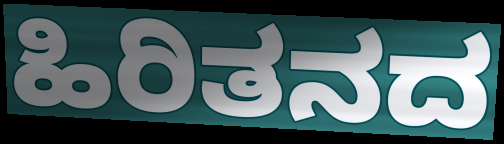
ಹಿರಿತನದ